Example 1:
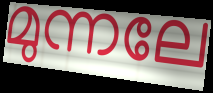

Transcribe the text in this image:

മുന്നലേ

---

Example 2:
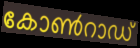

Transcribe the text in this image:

കോൺറാഡ്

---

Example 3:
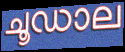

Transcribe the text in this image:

ചൂഡാല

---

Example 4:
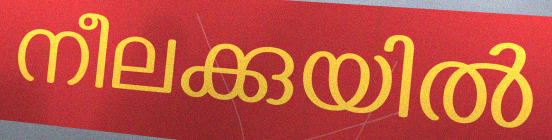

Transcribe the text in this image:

നീലക്കുയിൽ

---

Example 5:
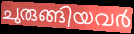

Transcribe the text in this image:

ചുരുങ്ങിയവർ